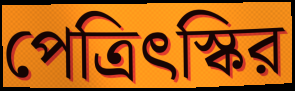
পেত্রিৎস্কির